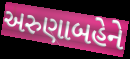
અરુણાબહેને